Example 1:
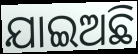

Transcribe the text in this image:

ଯାଇଅଛି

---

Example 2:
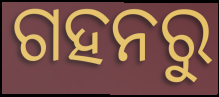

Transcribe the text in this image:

ଗହନରୁ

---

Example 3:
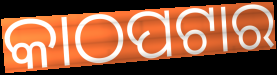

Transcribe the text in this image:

କାଠପଟାର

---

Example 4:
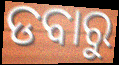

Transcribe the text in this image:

ଡବାରୁ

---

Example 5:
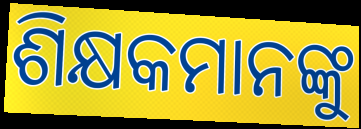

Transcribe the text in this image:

ଶିକ୍ଷକମାନଙ୍କୁ